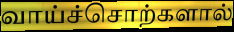
வாய்ச்சொற்களால்